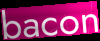
bacon